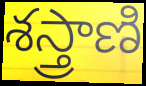
శస్త్రాణి